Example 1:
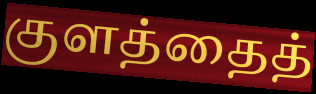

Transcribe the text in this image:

குளத்தைத்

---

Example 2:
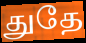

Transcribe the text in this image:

துதே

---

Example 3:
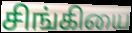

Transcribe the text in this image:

சிங்கியை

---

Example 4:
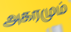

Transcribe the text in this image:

அகரமும்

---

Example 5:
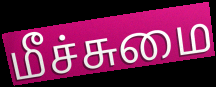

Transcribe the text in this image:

மீச்சுமை